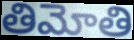
తిమోతి